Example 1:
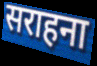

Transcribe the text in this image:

सराहना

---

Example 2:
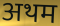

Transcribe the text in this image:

अथम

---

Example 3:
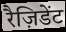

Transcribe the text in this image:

रैज़िडेंट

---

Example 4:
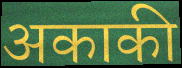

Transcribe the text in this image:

अकाकी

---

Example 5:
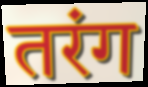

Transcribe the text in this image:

तरंग